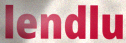
lendlu